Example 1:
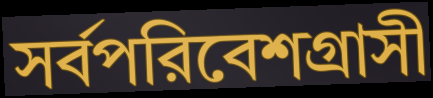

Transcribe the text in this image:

সর্বপরিবেশগ্রাসী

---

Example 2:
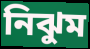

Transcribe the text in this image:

নিঝুম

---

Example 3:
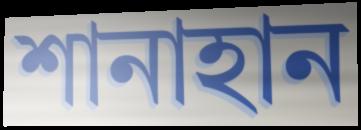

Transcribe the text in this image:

শানাহান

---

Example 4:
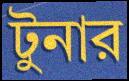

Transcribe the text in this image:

টুনার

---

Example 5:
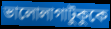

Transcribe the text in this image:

ভালোলাগাটুকুকে